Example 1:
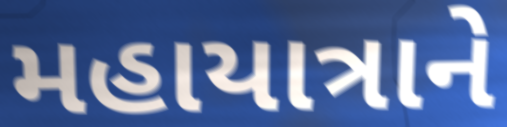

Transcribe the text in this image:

મહાયાત્રાને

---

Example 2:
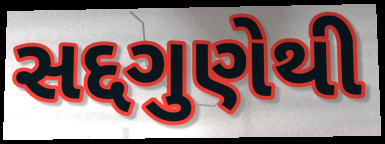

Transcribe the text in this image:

સદ્દગુણેથી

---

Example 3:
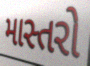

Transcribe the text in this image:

માસ્તરો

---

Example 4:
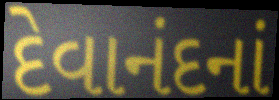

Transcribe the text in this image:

દેવાનંદનાં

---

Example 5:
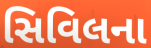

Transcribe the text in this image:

સિવિલના